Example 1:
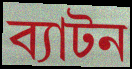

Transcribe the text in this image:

ব্যাটন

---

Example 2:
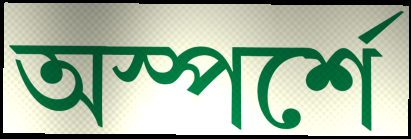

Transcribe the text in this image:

অস্পর্শে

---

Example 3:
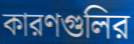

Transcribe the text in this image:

কারণগুলির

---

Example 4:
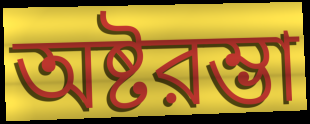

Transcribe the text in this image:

অষ্টরম্ভা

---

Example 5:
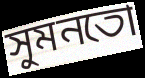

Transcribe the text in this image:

সুমনতো